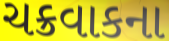
ચક્રવાકના